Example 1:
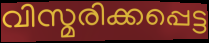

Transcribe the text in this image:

വിസ്മരിക്കപ്പെട്ട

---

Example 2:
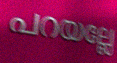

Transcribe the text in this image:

പറയല്ലേ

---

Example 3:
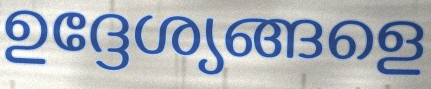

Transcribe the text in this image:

ഉദ്ദേശ്യങ്ങളെ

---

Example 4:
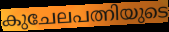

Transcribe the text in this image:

കുചേലപത്നിയുടെ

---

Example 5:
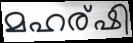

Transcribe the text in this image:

മഹര്ഷി